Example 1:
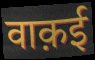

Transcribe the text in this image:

वाक़ई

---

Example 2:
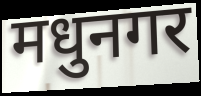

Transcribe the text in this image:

मधुनगर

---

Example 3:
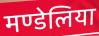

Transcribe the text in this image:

मण्डेलिया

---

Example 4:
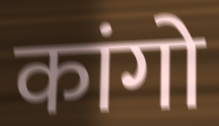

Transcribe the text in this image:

कांगो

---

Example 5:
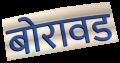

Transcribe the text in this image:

बोरावड